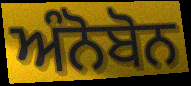
ਅੰਨੋਬੋਨ